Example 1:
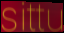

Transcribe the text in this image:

sittu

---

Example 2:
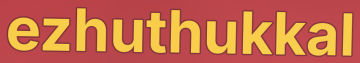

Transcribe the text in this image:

ezhuthukkal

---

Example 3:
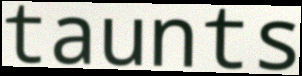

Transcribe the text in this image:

taunts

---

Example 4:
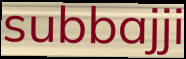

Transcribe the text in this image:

subbajji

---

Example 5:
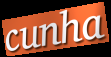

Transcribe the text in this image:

cunha